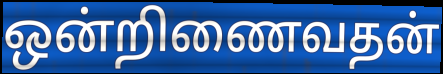
ஒன்றிணைவதன்